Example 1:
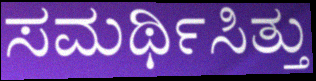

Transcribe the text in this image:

ಸಮರ್ಥಿಸಿತ್ತು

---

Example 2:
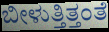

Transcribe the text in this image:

ಬೀಳುತ್ತಿತ್ತಂತೆ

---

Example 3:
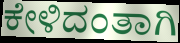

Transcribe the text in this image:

ಕೇಳಿದಂತಾಗಿ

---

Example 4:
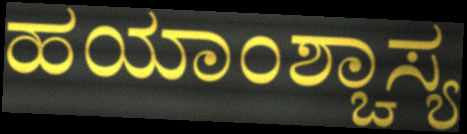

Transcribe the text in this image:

ಹಯಾಂಶ್ಚಾಸ್ಯ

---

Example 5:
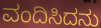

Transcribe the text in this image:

ವಂದಿಸಿದನು